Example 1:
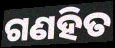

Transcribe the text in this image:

ଗଣହିତ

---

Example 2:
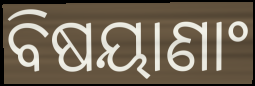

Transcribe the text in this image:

ବିଷୟାଣାଂ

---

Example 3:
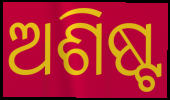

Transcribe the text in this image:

ଅଶିଷ୍ଟ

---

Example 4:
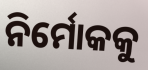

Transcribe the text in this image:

ନିର୍ମୋକକୁ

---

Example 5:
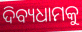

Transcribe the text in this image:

ଦିବ୍ୟଧାମକୁ